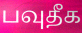
பவுதீக